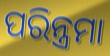
ପରିନ୍ତ୍ରମା